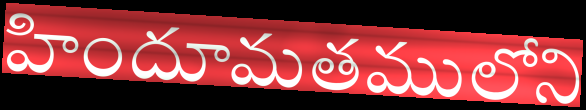
హిందూమతములోని